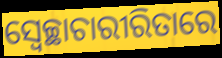
ସ୍ଵେଚ୍ଛାଚାରୀରିତାରେ